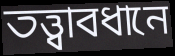
তত্ত্বাবধানে